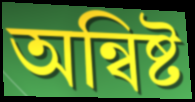
অন্বিষ্ট